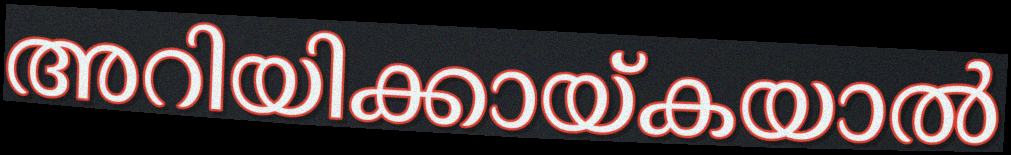
അറിയിക്കായ്കയാൽ